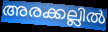
അരക്കല്ലിൽ